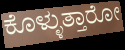
ಕೊಳ್ಳುತ್ತಾರೋ